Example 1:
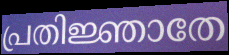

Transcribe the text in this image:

പ്രതിജ്ഞാതേ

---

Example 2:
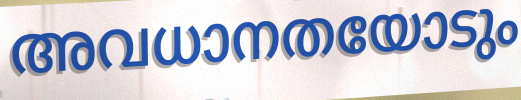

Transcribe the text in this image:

അവധാനതയോടും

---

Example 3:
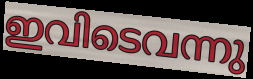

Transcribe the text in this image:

ഇവിടെവന്നു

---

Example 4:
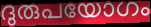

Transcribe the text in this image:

ദുരുപയോഗം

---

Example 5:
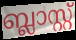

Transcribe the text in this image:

ബ്ലാസ്റ്റ്